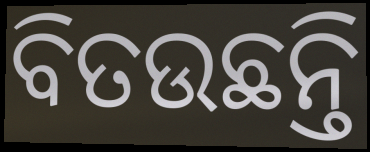
ବିତଉଛନ୍ତି